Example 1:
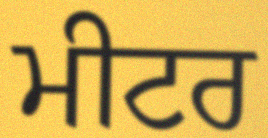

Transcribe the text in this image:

ਮੀਟਰ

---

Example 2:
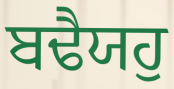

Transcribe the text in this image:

ਬਢੈਯਹੁ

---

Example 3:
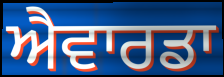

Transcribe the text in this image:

ਐਵਾਰਡਾ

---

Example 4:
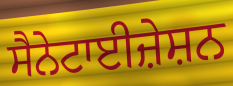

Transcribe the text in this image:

ਸੈਨੇਟਾਈਜ਼ੇਸ਼ਨ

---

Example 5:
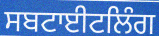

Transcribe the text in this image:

ਸਬਟਾਈਟਲਿੰਗ